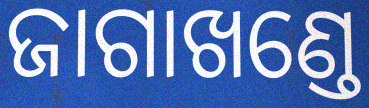
ଜାଗାଖଣ୍ଡେ